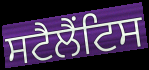
ਸਟੈਲੈਂਟਿਸ